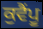
ਕੁਵੈਂਪੂ